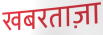
खबरताज़ा